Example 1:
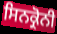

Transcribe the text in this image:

ਸਿਨਕ੍ਰੋਨੀ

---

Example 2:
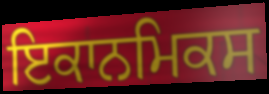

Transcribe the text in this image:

ਇਕਾਨਮਿਕਸ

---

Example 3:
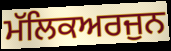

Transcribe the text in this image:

ਮੱਲਿਕਅਰਜੁਨ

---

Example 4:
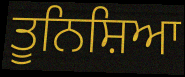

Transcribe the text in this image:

ਤੂਨਿਸ਼ਿਆ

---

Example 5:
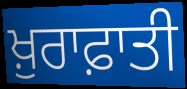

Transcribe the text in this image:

ਖ਼ੁਰਾਫ਼ਾਤੀ